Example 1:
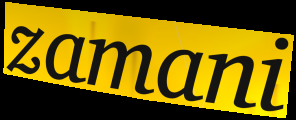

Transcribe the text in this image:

zamani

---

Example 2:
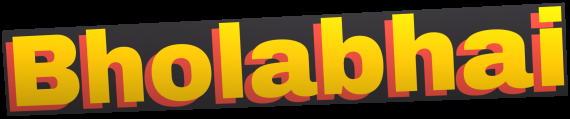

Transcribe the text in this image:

Bholabhai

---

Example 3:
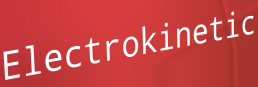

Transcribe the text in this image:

Electrokinetic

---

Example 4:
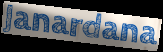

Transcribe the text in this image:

Janardana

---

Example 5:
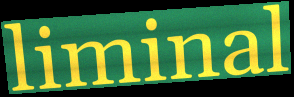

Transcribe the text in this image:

liminal